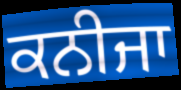
ਕਨੀਜਾ